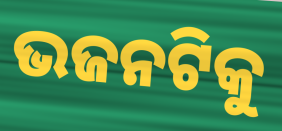
ଭଜନଟିକୁ